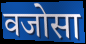
वजोसा